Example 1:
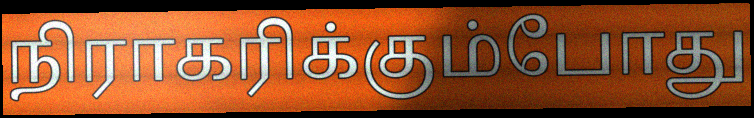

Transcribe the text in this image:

நிராகரிக்கும்போது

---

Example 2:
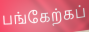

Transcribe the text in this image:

பங்கேற்கப்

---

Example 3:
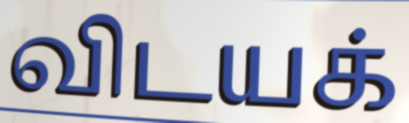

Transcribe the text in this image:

விடயக்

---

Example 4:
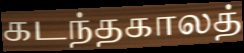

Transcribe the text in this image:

கடந்தகாலத்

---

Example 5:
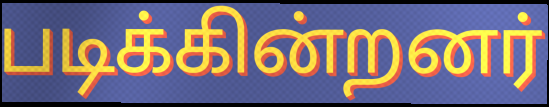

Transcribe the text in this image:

படிக்கின்றனர்